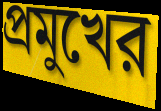
প্রমুখের